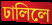
ঢালিলে